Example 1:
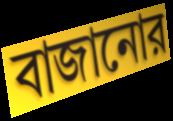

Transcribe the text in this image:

বাজানোর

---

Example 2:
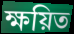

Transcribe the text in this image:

ক্ষয়িত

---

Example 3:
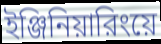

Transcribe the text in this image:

ইঞ্জিনিয়ারিংয়ে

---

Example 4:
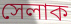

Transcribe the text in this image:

সেলাক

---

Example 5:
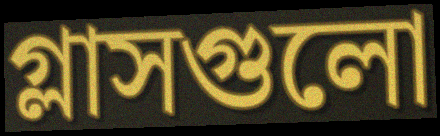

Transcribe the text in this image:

গ্লাসগুলো